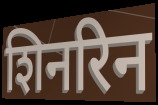
शिनरिन